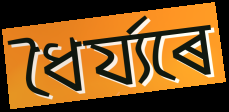
ধৈৰ্য্যৰে